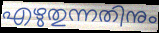
എഴുതുന്നതിനും